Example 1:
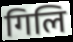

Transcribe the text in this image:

गिलि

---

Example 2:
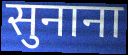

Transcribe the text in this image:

सुनाना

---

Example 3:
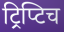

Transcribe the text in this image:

ट्रिप्टिच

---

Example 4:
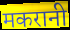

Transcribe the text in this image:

मकरानी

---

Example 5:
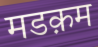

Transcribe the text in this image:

मडक़म